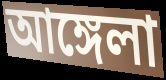
আঙ্গেলা